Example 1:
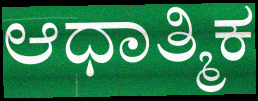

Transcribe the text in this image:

ಆಧಾತ್ಮಿಕ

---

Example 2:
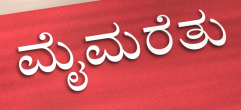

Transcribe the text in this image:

ಮೈಮರೆತು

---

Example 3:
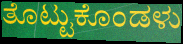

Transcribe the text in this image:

ತೊಟ್ಟುಕೊಂಡಳು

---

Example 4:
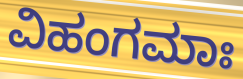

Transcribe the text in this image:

ವಿಹಂಗಮಾಃ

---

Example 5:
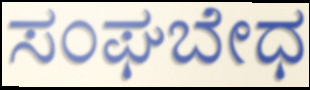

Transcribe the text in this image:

ಸಂಘಬೇಧ